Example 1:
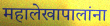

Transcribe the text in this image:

महालेखापालांना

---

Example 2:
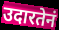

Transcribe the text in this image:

उदारतेनं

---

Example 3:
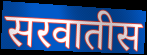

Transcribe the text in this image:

सरवातीस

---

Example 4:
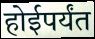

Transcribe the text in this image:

होईपर्यंत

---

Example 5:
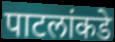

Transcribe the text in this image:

पाटलांकडे